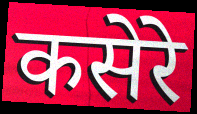
कसेरे